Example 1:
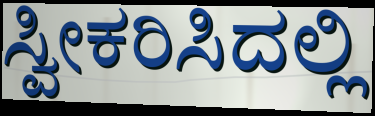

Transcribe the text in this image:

ಸ್ವೀಕರಿಸಿದಲ್ಲಿ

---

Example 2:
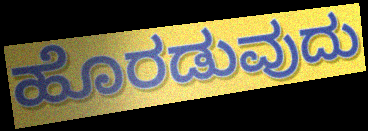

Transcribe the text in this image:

ಹೊರಡುವುದು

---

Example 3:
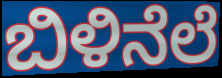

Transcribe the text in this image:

ಬಿಳಿನೆಲೆ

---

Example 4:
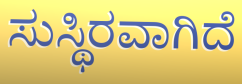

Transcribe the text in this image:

ಸುಸ್ಥಿರವಾಗಿದೆ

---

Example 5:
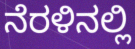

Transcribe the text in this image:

ನೆರಳಿನಲ್ಲಿ